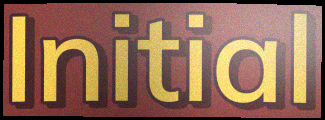
Initial